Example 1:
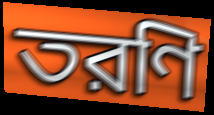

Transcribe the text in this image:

তরণি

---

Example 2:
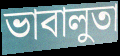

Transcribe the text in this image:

ভাবালুতা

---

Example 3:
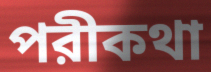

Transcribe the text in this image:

পরীকথা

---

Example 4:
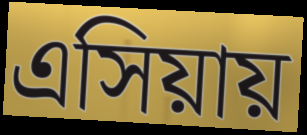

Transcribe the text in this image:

এসিয়ায়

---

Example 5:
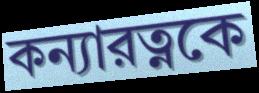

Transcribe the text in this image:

কন্যারত্নকে